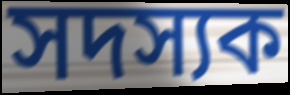
সদস্যক